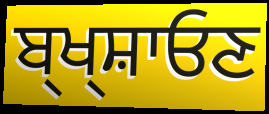
ਬ੍ਖ੍ਸ਼ਾਓਣ